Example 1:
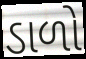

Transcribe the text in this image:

ડાળો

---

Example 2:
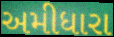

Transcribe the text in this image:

અમીધારા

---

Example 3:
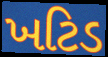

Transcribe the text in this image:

ખટિડ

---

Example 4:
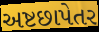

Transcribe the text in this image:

અષ્ટછાપેતર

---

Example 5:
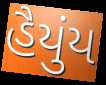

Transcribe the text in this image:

હૈયુંય